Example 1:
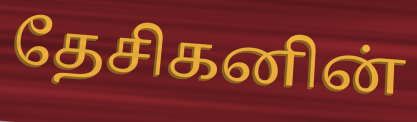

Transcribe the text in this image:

தேசிகனின்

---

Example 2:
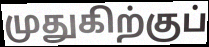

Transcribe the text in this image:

முதுகிற்குப்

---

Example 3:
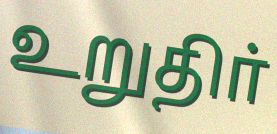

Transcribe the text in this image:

உறுதிர்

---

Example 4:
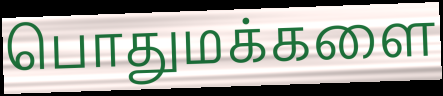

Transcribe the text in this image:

பொதுமக்களை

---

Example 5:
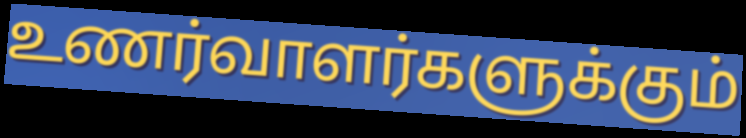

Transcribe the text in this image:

உணர்வாளர்களுக்கும்